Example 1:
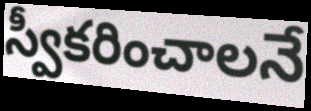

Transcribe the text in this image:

స్వీకరించాలనే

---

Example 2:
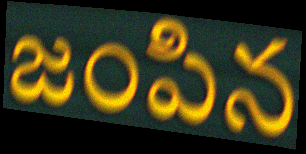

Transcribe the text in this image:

జంపిన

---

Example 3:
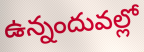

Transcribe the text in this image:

ఉన్నందువల్లో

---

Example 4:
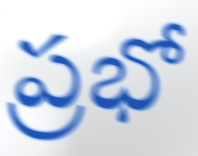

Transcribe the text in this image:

ప్రభో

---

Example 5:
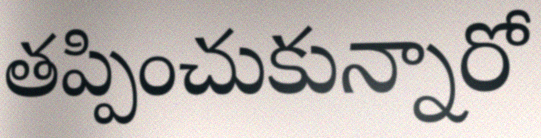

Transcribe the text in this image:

తప్పించుకున్నారో